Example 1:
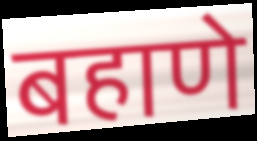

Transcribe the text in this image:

बहाणे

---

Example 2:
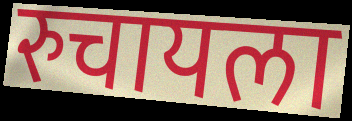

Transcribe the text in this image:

रुचायला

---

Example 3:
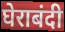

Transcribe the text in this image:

घेराबंदी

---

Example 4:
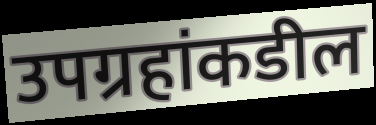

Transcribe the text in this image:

उपग्रहांकडील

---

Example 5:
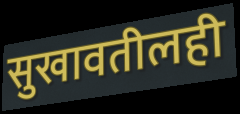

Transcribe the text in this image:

सुखावतीलही